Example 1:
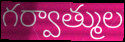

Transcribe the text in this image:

గర్వాత్ముల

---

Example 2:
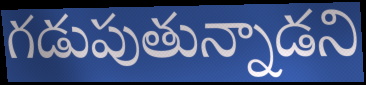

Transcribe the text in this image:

గడుపుతున్నాడని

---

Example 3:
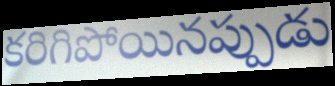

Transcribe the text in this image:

కరిగిపోయినప్పుడు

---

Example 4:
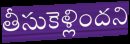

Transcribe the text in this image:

తీసుకెళ్లిందని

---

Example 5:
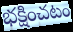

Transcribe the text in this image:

భక్షించటం